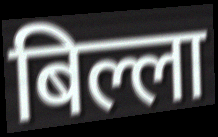
बिल्ला